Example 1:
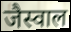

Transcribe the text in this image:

जैस्वाल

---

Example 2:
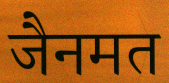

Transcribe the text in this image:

जैनमत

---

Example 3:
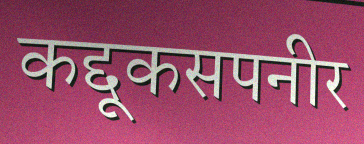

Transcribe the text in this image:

कद्दूकसपनीर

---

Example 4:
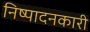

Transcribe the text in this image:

निष्पादनकारी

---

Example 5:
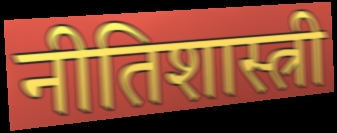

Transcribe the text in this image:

नीतिशास्त्री